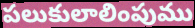
పలుకులాలింపుము